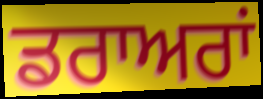
ਡਰਾਅਰਾਂ